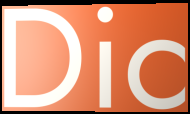
Dic